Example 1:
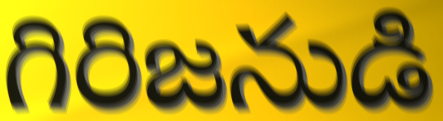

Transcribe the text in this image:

గిరిజనుడి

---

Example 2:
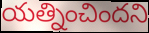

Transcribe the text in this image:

యత్నించిందని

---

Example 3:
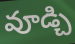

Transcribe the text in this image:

వూడ్చి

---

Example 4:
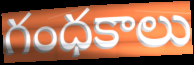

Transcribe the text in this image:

గంధకాలు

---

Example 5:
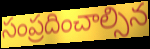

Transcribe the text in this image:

సంప్రదించాల్సిన